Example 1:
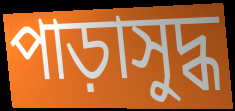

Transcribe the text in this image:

পাড়াসুদ্ধ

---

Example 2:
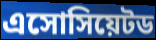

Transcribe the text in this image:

এসোসিয়েটড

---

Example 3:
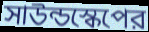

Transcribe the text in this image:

সাউন্ডস্কেপের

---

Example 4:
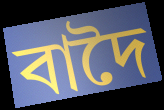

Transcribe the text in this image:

বাদৈ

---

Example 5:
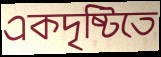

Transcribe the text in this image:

একদৃষ্টিতে